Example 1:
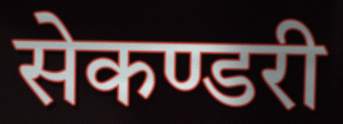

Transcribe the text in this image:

सेकण्‍डरी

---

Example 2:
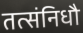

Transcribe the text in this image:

तत्संनिधौ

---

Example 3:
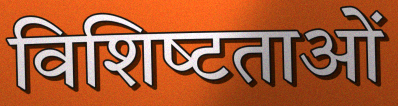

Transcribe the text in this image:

विशिष्‍टताओं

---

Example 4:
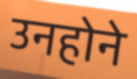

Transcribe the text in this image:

उनहोने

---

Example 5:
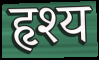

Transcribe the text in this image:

हृश्य